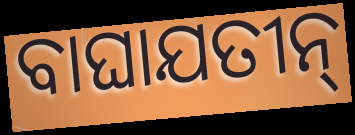
ବାଘାଯତୀନ୍